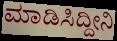
ಮಾಡಿಸಿದ್ದೀನಿ